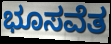
ಭೂಸವೆತ